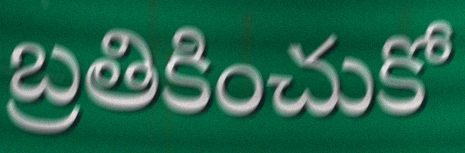
బ్రతికించుకో